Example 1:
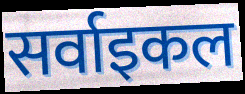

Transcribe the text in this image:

सर्वाइकल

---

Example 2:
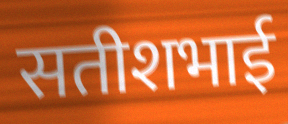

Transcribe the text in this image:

सतीशभाई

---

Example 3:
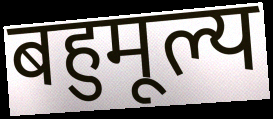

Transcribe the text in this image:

बहुमूल्य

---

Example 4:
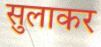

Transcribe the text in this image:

सुलाकर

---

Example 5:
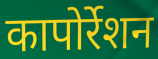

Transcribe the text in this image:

कापोर्रेशन